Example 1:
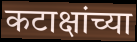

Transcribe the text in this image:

कटाक्षांच्या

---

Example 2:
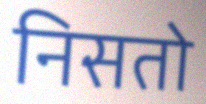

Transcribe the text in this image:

निसतो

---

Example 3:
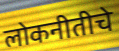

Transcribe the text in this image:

लोकनीतीचे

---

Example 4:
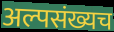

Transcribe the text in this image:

अल्पसंख्यच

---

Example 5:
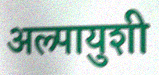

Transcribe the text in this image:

अल्पायुशी